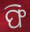
ଫି